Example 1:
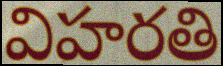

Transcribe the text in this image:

విహరతి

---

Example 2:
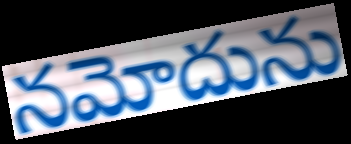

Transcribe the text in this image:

నమోదును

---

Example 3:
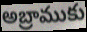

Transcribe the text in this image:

అబ్రాముకు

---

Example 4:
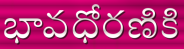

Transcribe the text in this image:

భావధోరణికి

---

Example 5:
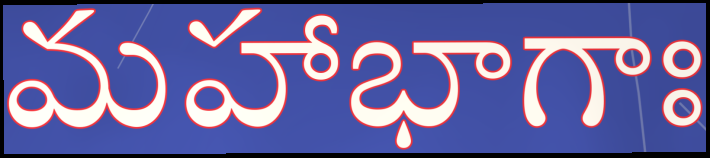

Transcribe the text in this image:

మహాభాగాః